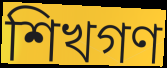
শিখগণ